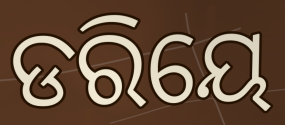
ଡରିୟେ